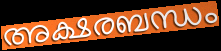
അക്ഷരബന്ധം